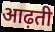
आढ़ती